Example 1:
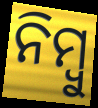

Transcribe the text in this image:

ନିମ୍ବୁ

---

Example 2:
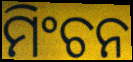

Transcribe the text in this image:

ମିଂଚନ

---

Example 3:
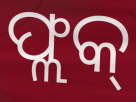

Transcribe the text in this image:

ଫ୍ଲକ୍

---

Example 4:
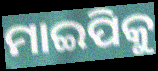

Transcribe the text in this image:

ମାଇପିକୁ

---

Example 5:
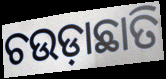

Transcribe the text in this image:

ଚଉଡ଼ାଛାତି